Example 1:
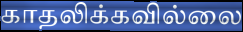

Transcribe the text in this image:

காதலிக்கவில்லை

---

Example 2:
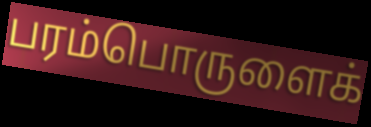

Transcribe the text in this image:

பரம்பொருளைக்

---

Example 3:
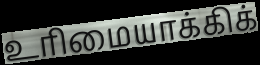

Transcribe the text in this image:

உரிமையாக்கிக்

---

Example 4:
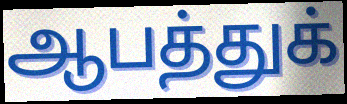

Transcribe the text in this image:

ஆபத்துக்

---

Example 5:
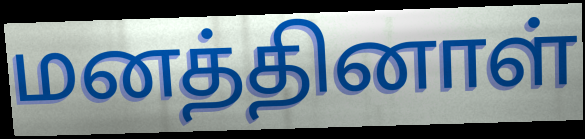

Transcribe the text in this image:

மனத்தினாள்